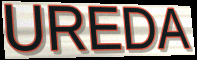
UREDA